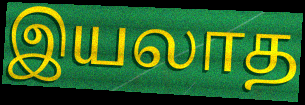
இயலாத